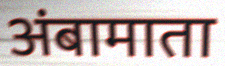
अंबामाता